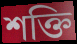
শক্তি